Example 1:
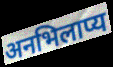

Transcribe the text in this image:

अनभिलाप्य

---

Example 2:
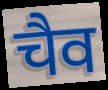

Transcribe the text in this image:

चैव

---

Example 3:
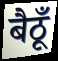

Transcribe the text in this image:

बैठूँ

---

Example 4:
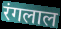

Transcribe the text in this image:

रंगलाल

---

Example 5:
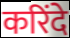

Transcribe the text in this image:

करिंदे